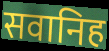
सवानिह